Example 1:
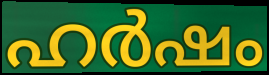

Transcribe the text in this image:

ഹർഷം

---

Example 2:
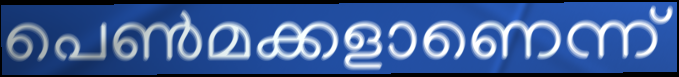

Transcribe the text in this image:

പെൺമക്കളാണെന്ന്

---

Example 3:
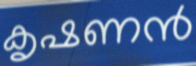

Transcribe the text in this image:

കൃഷണൻ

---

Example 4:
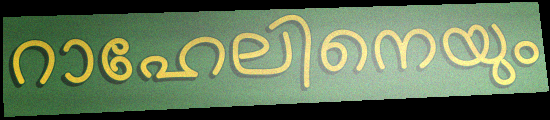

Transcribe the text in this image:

റാഹേലിനെയും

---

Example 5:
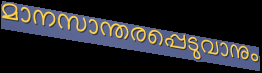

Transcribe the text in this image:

മാനസാന്തരപ്പെടുവാനും